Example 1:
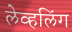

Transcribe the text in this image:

लेव्हलिंग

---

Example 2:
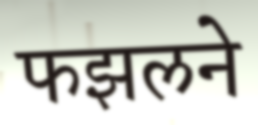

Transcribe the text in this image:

फझलने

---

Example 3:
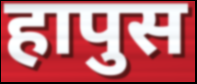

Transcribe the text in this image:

हापुस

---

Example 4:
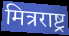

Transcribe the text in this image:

मित्रराष्ट्र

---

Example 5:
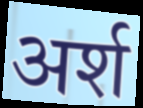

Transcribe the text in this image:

अर्श